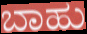
ಬಾಹು